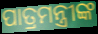
ପାତ୍ରମନ୍ତ୍ରୀଙ୍କ